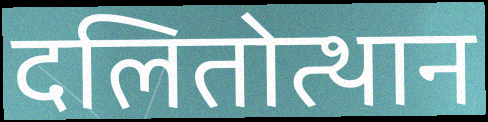
दलितोत्थान